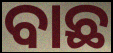
ବାଛ